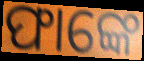
ଫାଙ୍କେ